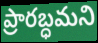
ప్రారబ్ధమని